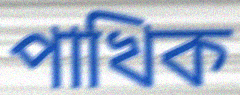
পাখিক